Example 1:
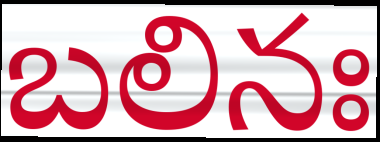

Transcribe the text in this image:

బలినః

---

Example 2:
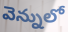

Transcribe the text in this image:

వెన్నులో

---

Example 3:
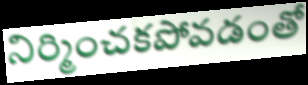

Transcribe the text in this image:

నిర్మించకపోవడంతో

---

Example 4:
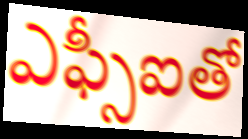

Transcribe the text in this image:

ఎఫ్సీఐతో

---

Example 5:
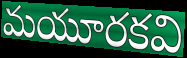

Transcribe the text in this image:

మయూరకవి